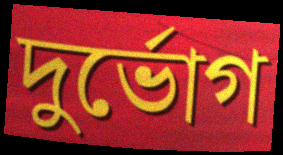
দুর্ভোগ